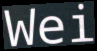
Wei